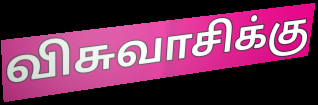
விசுவாசிக்கு